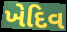
ખેદિવ